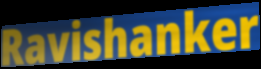
Ravishanker